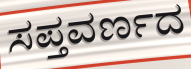
ಸಪ್ತವರ್ಣದ